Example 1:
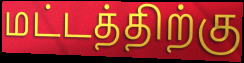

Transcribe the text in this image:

மட்டத்திற்கு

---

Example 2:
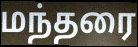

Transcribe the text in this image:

மந்தரை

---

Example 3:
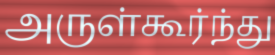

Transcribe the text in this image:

அருள்கூர்ந்து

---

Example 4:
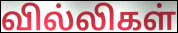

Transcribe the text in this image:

வில்லிகள்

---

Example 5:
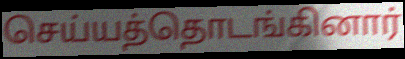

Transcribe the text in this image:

செய்யத்தொடங்கினார்